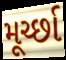
મૂર્ચ્છા